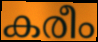
കരീം